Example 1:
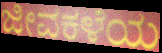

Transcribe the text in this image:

ಜೀವಕಳೆಯ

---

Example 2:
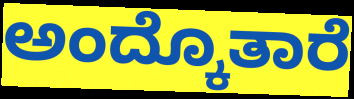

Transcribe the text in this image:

ಅಂದ್ಕೊತಾರೆ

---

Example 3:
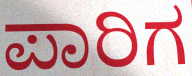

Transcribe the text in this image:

ಪಾರಿಗ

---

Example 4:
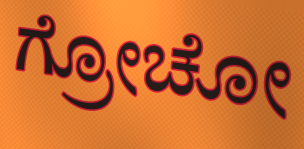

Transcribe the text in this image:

ಗ್ರೋಚೋ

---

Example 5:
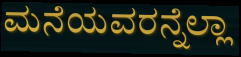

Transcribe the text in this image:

ಮನೆಯವರನ್ನೆಲ್ಲಾ